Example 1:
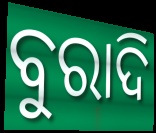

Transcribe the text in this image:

ବୁରାଦି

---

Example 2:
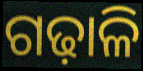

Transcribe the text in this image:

ଗଢ଼ାଳି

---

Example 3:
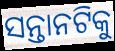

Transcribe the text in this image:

ସନ୍ତାନଟିକୁ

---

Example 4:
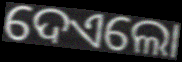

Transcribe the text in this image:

ଦେଏଲୋ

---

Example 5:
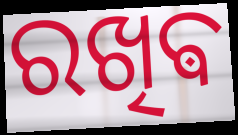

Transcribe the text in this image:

ରଖିଵ